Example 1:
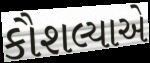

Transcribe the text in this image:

કૌશલ્યાએ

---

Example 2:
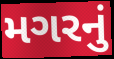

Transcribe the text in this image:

મગરનું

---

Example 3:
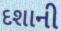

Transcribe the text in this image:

દશાની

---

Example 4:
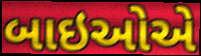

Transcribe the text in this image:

બાઇઓએ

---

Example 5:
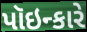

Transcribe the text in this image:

પૉઇન્કારે